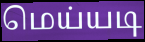
மெய்யடி